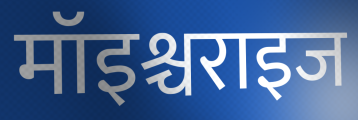
मॉइश्चराइज